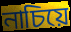
নাচিয়ে